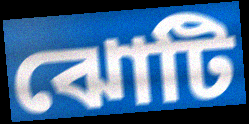
ঝোটি